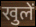
खुलें